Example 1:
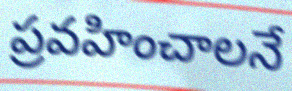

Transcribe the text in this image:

ప్రవహించాలనే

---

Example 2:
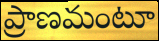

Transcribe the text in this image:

ప్రాణమంటూ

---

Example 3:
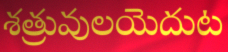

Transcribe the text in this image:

శత్రువులయెదుట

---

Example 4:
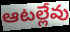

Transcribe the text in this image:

ఆటల్లేవు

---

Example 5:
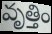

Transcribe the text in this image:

వృత్తిం